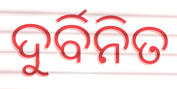
ଦୁର୍ବିନିତ